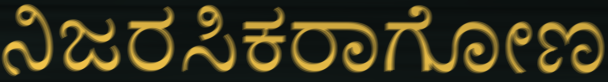
ನಿಜರಸಿಕರಾಗೋಣ